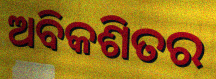
ଅବିକଶିତର